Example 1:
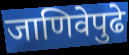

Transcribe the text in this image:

जाणिवेपुढे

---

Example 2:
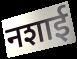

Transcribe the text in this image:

नशाई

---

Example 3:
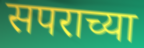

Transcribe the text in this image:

सपराच्या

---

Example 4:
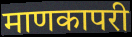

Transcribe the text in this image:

माणकापरी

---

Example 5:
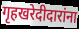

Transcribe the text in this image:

गृहखरेदीदारांना